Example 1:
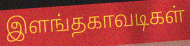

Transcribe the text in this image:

இளங்தகாவடிகள்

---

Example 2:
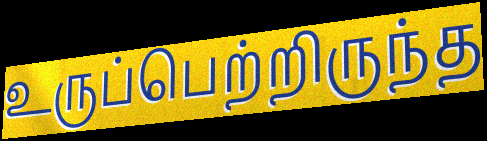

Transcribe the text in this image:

உருப்பெற்றிருந்த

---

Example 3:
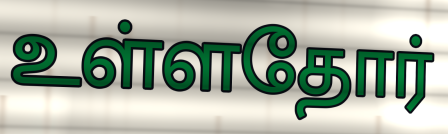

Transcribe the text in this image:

உள்ளதோர்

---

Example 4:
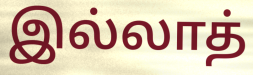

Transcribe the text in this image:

இல்லாத்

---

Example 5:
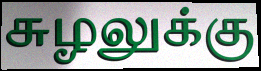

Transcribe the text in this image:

சுழலுக்கு